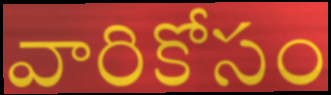
వారికోసం